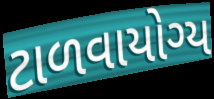
ટાળવાયોગ્ય